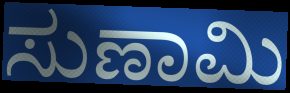
ಸುಣಾಮಿ